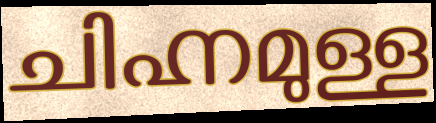
ചിഹ്നമുള്ള